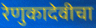
रेणुकादेवीचा